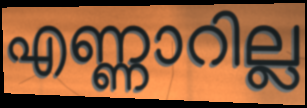
എണ്ണാറില്ല